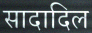
सादादिल